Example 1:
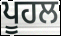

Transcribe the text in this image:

ਪੂਹਲ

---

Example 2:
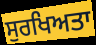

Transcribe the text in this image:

ਸੁਰਖਿਅਤਾ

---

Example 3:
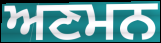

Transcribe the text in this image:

ਅਣਮਨ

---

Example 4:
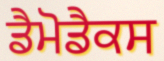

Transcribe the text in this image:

ਡੈਮੋਡੈਕਸ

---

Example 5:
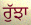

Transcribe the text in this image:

ਰੁੱਝਾ